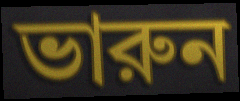
ভারুন